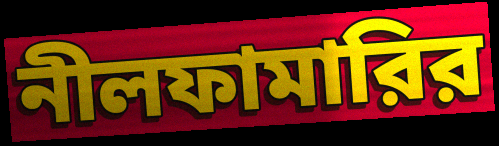
নীলফামারির